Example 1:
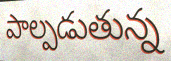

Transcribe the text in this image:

పాల్పడుతున్న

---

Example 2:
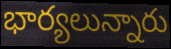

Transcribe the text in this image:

భార్యలున్నారు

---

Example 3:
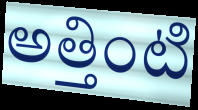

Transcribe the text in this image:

అత్తింటి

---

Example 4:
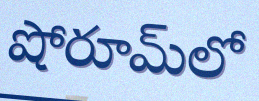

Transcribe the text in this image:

షోరూమ్‌లో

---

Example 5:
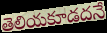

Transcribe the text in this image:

తెలియకూడదనే